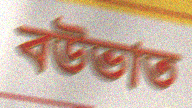
বউভাত